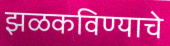
झळकविण्याचे